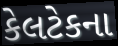
કેલટેકના